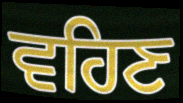
ਵਹਿਣ